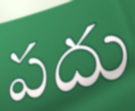
పదు